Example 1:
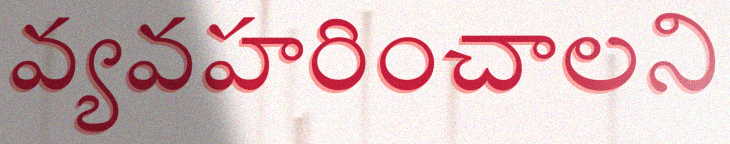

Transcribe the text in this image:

వ్యవహరించాలని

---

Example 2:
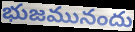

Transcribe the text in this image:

భుజమునందు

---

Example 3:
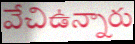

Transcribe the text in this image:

వేచిఉన్నారు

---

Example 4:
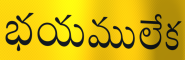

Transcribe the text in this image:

భయములేక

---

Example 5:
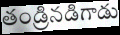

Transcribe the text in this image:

తండ్రినడిగాడు